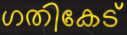
ഗതികേട്